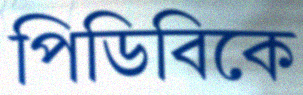
পিডিবিকে